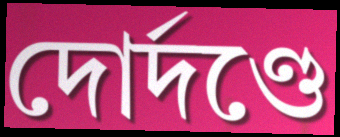
দোর্দণ্ডে